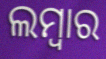
ଲମ୍ୱାର